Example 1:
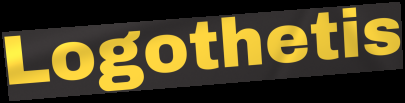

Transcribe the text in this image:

Logothetis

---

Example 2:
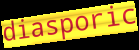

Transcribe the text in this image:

diasporic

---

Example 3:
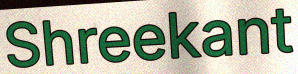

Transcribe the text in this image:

Shreekant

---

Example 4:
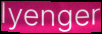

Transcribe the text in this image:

Iyenger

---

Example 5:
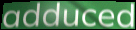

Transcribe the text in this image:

adduced